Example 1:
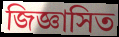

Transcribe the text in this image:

জিজ্ঞাসিত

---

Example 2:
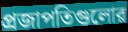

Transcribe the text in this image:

প্রজাপতিগুলোর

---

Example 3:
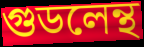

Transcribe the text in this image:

গুডলেন্থ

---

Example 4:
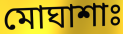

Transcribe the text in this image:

মোঘাশাঃ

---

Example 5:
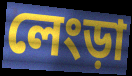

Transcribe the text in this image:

লেংড়া